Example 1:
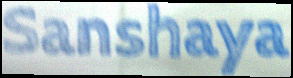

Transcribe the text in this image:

Sanshaya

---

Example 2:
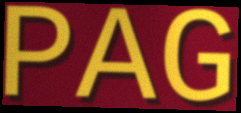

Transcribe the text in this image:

PAG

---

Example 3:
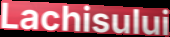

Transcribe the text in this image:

Lachisului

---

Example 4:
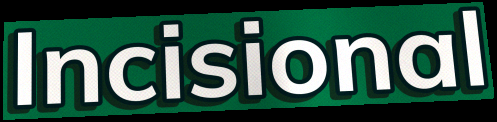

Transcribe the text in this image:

Incisional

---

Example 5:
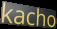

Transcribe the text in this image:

kacho